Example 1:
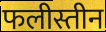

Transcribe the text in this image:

फलीस्तीन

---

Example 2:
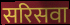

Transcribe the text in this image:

सरिसवा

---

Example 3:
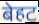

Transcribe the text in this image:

बेहट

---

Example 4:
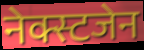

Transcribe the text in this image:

नेक्स्टजेन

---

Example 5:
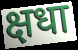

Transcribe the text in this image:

क्षधा